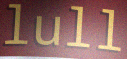
lull